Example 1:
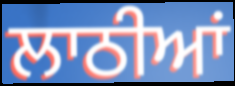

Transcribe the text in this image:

ਲਾਠੀਆਂ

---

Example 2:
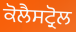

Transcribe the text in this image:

ਕੋਲੈਸਟ੍ਰੋਲ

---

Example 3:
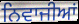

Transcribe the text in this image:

ਨਿਵਾਜੀਆਂ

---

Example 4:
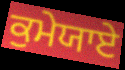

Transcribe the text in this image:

ਕੁਮੇਯਾਏ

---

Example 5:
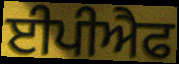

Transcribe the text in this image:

ਈਪੀਐਫ